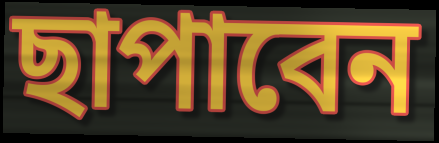
ছাপাবেন